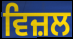
ਵਿਜ਼ਲ